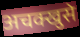
अचक्खुसे